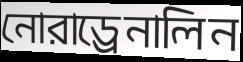
নোরাড্রেনালিন